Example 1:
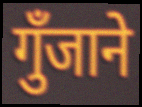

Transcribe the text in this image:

गुँजाने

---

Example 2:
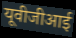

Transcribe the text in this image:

यूवीजीआई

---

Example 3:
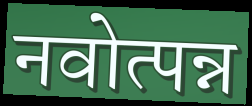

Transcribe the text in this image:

नवोत्पन्न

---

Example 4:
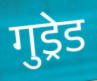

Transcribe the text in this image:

गुड्रेड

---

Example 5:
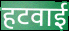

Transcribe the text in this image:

हटवाई